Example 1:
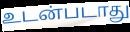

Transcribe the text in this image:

உடன்படாது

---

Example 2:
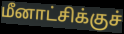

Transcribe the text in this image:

மீனாட்சிக்குச்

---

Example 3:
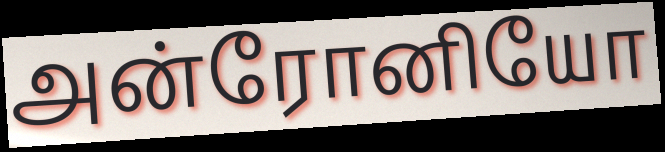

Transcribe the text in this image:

அன்ரோனியோ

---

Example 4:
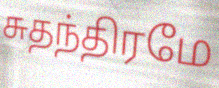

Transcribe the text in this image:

சுதந்திரமே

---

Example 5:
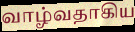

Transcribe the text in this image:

வாழ்வதாகிய